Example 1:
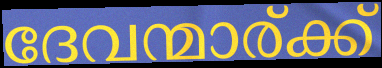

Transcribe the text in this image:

ദേവന്മാര്ക്ക്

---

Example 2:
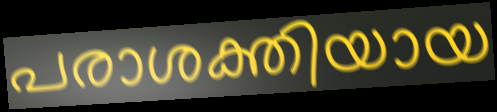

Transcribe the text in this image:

പരാശക്തിയായ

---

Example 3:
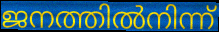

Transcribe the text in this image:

ജനത്തിൽനിന്ന്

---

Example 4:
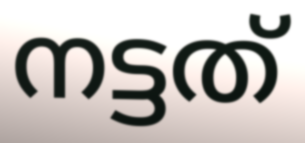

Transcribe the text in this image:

നട്ടത്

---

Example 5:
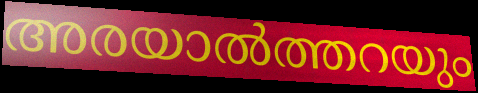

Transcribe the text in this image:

അരയാൽത്തറയും